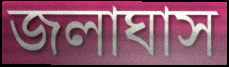
জলাঘাস